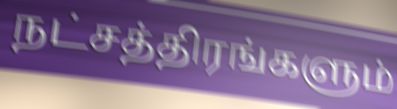
நட்சத்திரங்களும்